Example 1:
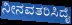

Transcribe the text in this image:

ನೀನವತರಿಸಿದೈ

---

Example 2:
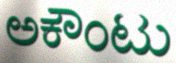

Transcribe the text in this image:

ಅಕೌಂಟು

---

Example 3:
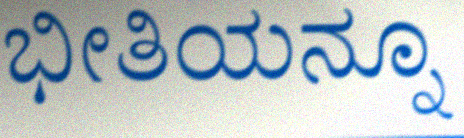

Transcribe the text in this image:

ಭೀತಿಯನ್ನೂ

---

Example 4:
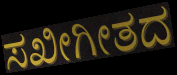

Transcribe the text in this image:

ಸಖೀಗೀತದ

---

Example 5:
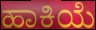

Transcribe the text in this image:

ಹಾಕಿಯೆ